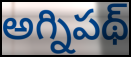
అగ్నిపథ్